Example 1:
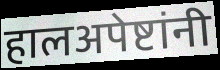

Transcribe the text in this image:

हालअपेष्टांनी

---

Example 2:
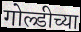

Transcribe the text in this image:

गोल्डीच्या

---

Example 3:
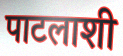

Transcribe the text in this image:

पाटलाशी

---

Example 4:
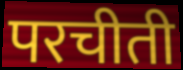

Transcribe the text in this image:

परचीती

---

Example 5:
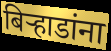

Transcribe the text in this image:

बिऱ्हाडांना